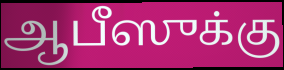
ஆபீஸுக்கு